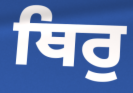
ਥਿਰੁ